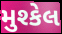
મુશ્કેલ